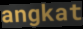
angkat